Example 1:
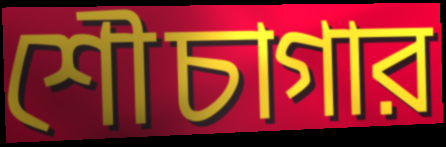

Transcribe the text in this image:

শৌচাগার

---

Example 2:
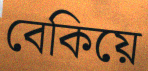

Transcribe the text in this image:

বেকিয়ে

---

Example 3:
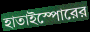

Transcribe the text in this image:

হাতাইস্পোরের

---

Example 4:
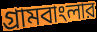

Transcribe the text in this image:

গ্রামবাংলার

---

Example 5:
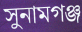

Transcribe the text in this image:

সুনামগঞ্জ